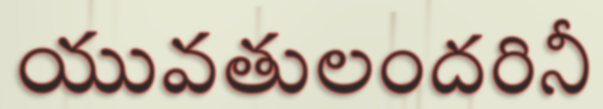
యువతులందరినీ